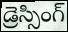
డ్రెస్సింగ్